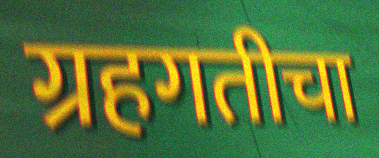
ग्रहगतीचा